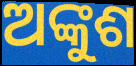
ଅଙ୍କୁଶ